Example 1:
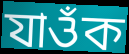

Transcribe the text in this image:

যাওঁক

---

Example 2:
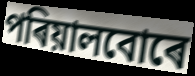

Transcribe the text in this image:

পৰিয়ালবোৰে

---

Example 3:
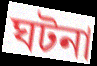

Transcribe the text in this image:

ঘটনা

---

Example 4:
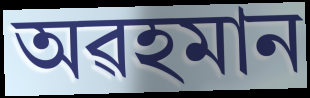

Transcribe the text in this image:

অৱহমান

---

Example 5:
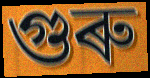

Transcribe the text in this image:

গুৰু